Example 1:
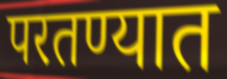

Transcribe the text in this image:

परतण्यात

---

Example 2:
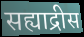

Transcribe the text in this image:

सह्याद्रीस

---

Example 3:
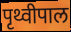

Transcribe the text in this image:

पृथ्वीपाल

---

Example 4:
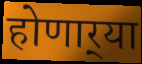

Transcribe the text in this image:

होणार्या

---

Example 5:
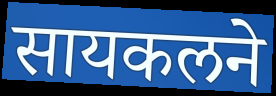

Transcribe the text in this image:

सायकलने